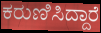
ಕರುಣಿಸಿದ್ದಾರೆ